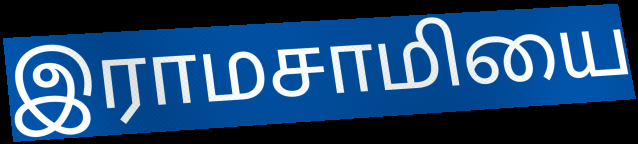
இராமசாமியை